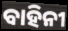
ବାହିନୀ